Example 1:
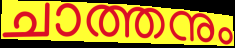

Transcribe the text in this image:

ചാത്തനും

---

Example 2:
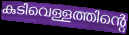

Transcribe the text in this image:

കുടിവെള്ളത്തിന്റെ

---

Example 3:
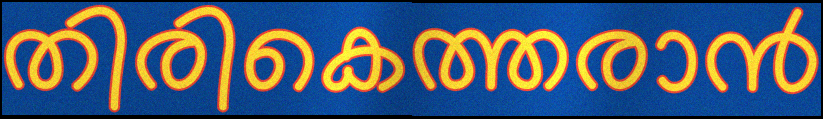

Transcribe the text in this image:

തിരികെത്തരാൻ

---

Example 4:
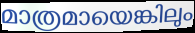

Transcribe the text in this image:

മാത്രമായെങ്കിലും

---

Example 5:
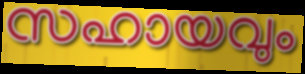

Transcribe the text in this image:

സഹായവും